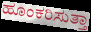
ಹೂಂಕರಿಸುತ್ತಾ